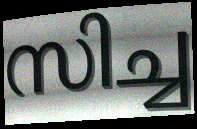
സിച്ച